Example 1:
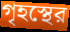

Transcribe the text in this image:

গৃহস্থের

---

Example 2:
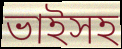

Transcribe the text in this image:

ভাইসহ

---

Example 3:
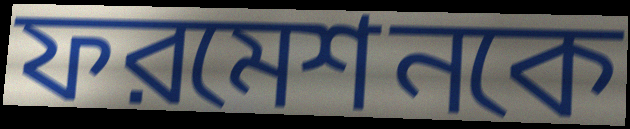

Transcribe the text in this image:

ফরমেশনকে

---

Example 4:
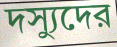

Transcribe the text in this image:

দস্যুদের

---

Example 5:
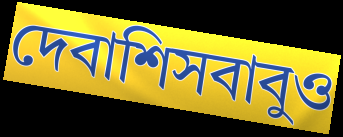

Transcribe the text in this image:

দেবাশিসবাবুও